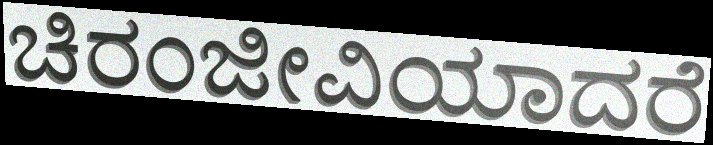
ಚಿರಂಜೀವಿಯಾದರೆ